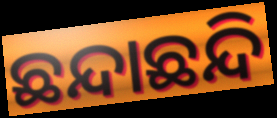
ଛନ୍ଦାଛନ୍ଦି